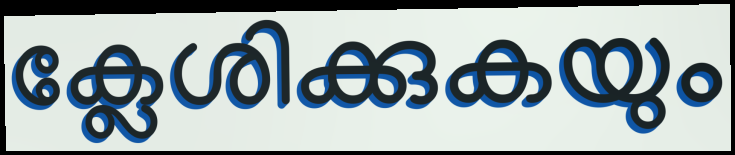
ക്ലേശിക്കുകയും